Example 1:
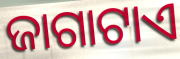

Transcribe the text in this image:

ଜାଗାଟାଏ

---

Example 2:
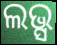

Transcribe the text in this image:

ଲଭ୍ସ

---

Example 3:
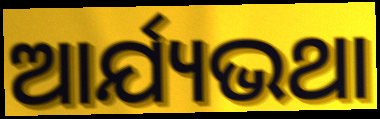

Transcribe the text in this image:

ଆର୍ଯ୍ୟଭଥା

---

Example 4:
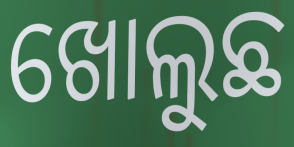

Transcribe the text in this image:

ଖୋଲୁଛ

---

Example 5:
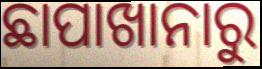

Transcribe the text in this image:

ଛାପାଖାନାରୁ